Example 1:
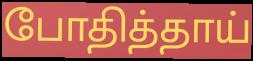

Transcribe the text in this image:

போதித்தாய்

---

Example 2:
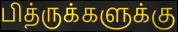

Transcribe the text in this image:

பித்ருக்களுக்கு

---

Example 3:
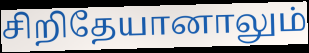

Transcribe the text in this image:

சிறிதேயானாலும்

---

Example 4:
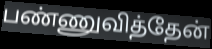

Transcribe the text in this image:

பண்ணுவித்தேன்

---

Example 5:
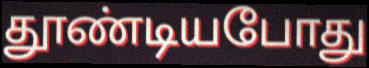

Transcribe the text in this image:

தூண்டியபோது